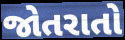
જોતરાતો